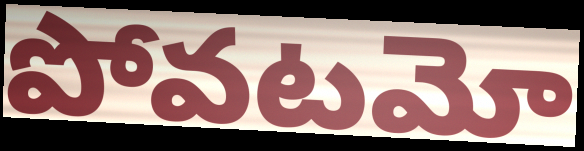
పోవటమో